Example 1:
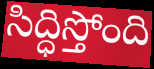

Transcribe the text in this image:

సిద్ధిస్తోంది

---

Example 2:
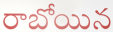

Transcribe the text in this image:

రాబోయిన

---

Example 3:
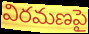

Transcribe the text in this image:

విరమణపై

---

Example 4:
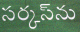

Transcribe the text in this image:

సర్కస్‌ను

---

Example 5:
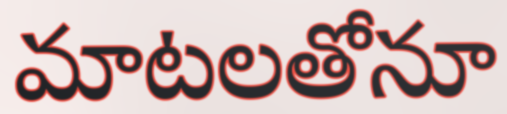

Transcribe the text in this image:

మాటలతోనూ